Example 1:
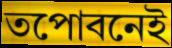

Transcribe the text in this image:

তপোবনেই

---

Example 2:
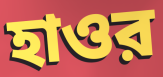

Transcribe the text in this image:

হাওর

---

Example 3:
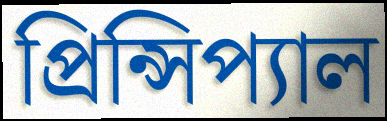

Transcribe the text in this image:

প্রিন্সিপ্যাল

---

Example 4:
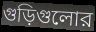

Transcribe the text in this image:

গুড়িগুলোর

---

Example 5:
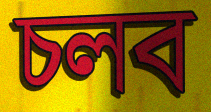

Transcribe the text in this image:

চলব